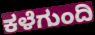
ಕಳೆಗುಂದಿ